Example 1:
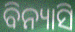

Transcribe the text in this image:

ବିନ୍ୟାସି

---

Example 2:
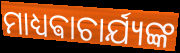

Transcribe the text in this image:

ମାଧ୍ୟଵାଚାର୍ଯ୍ୟଙ୍କ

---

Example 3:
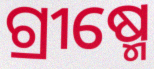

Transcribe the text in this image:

ଗ୍ରୀଷ୍ମେ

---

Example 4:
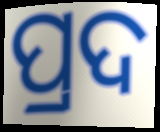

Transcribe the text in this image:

ପ୍ରଦ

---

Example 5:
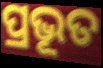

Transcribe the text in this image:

ପ୍ରଭୂତ